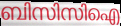
ബിസിസിഐ